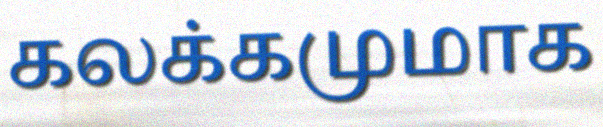
கலக்கமுமாக